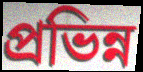
প্রভিন্ন